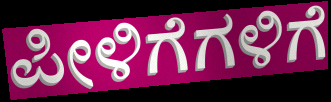
ಪೀಳಿಗೆಗಳಿಗೆ